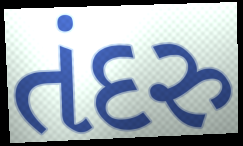
તંદરુ